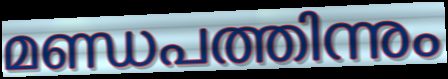
മണ്ഡപത്തിന്നും